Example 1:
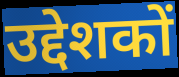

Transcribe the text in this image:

उद्देशकों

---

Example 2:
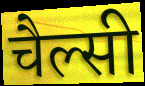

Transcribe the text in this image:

चैल्सी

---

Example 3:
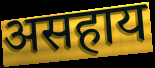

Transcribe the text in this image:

असहाय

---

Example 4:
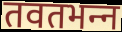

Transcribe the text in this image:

तवतभन्न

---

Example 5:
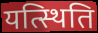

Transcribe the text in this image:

यत्स्थिति